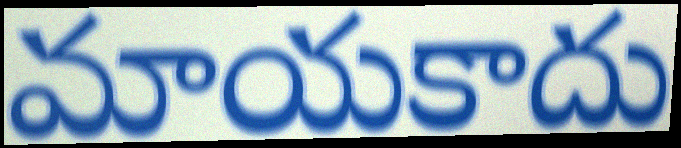
మాయకాదు